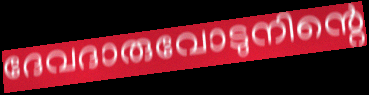
ദേവദാരുവോടുനിന്റെ